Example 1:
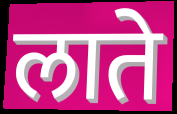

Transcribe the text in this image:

लाते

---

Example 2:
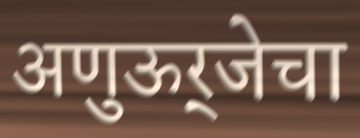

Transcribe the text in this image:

अणुऊर्जेचा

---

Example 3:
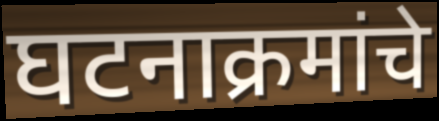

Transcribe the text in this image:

घटनाक्रमांचे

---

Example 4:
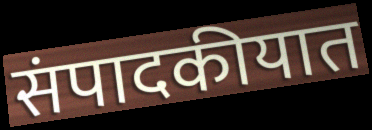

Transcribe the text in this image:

संपादकीयात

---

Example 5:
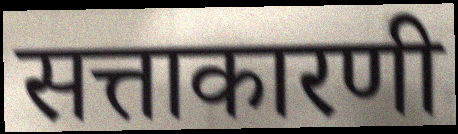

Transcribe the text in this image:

सत्ताकारणी